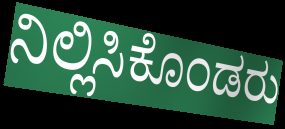
ನಿಲ್ಲಿಸಿಕೊಂಡರು